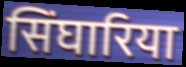
सिंघारिया